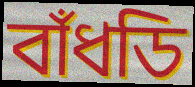
বাঁধডি